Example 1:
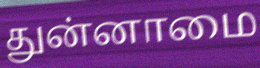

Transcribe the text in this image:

துன்னாமை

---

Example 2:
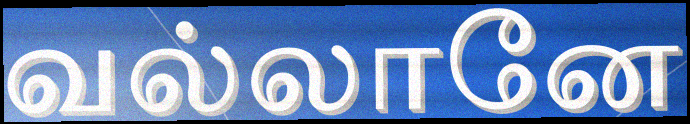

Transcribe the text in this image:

வல்லானே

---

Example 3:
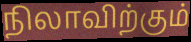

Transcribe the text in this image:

நிலாவிற்கும்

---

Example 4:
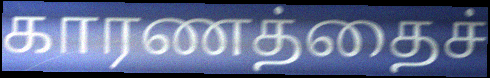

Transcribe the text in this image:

காரணத்தைச்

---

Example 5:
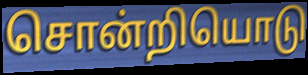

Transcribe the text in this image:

சொன்றியொடு